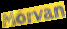
Morvan